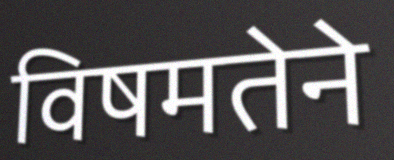
विषमतेने